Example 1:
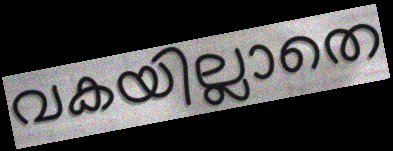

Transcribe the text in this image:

വകയില്ലാതെ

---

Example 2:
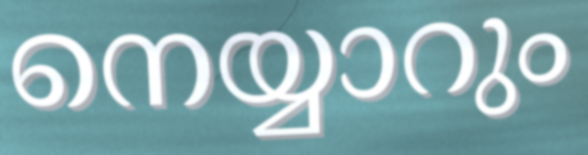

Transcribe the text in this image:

നെയ്യാറും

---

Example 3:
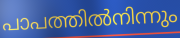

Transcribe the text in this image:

പാപത്തിൽനിന്നും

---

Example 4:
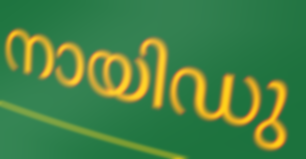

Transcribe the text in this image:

നായിഡു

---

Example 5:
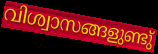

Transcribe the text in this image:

വിശ്വാസങ്ങളുണ്ടു്